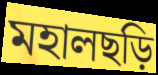
মহালছড়ি